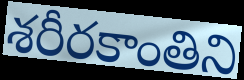
శరీరకాంతిని